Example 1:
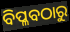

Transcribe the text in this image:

ବିପ୍ଳବଠାରୁ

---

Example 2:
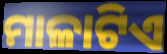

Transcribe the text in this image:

ମାଳାଟିଏ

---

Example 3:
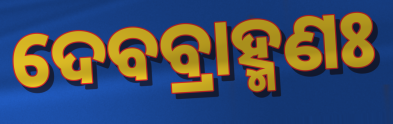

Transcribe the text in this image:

ଦେବବ୍ରାହ୍ମଣଃ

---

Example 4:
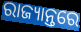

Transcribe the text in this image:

ରାଜ୍ୟାନ୍ତରେ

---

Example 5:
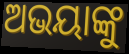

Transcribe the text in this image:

ଅଭୟାଙ୍କୁ